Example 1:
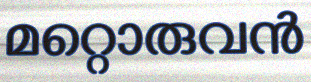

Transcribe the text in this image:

മറ്റൊരുവൻ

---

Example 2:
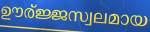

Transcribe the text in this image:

ഊര്ജ്ജസ്വലമായ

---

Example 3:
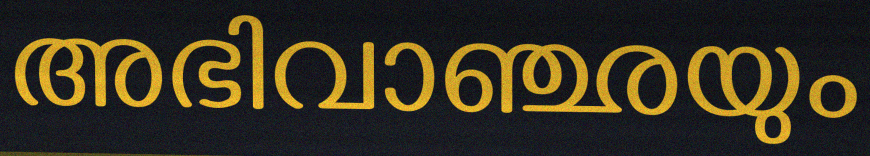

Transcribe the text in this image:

അഭിവാഞ്ഛയും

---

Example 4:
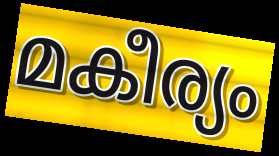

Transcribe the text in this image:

മകീര്യം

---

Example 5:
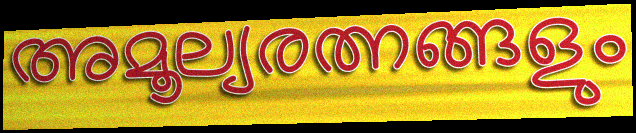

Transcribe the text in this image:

അമൂല്യരത്നങ്ങളും